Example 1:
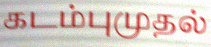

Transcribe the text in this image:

கடம்புமுதல்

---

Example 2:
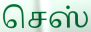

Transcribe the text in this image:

செஸ்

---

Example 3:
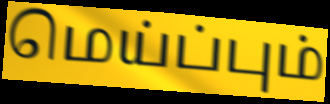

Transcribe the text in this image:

மெய்ப்பும்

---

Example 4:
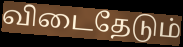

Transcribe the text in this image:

விடைதேடும்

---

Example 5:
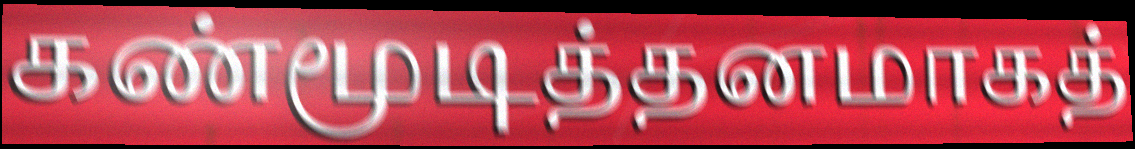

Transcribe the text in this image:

கண்மூடித்தனமாகத்